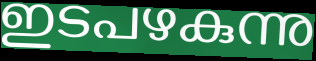
ഇടപഴകുന്നു